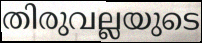
തിരുവല്ലയുടെ